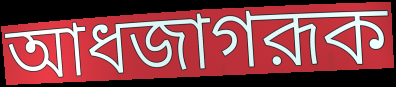
আধজাগরূক